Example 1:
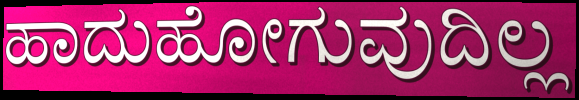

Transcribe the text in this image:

ಹಾದುಹೋಗುವುದಿಲ್ಲ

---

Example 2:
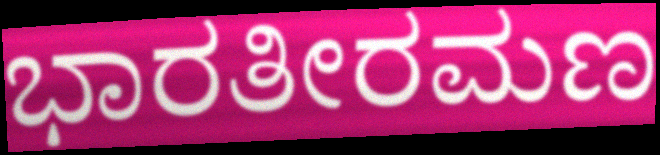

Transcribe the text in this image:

ಭಾರತೀರಮಣ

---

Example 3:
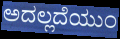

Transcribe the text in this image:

ಅದಲ್ಲದೆಯುಂ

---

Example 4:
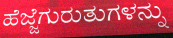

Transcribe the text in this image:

ಹೆಜ್ಜೆಗುರುತುಗಳನ್ನು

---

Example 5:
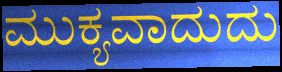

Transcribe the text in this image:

ಮುಕ್ಯವಾದುದು